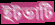
ইটভাটি